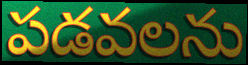
పడవలను